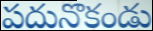
పదునొకండు